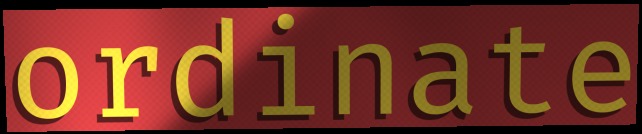
ordinate